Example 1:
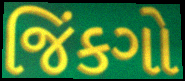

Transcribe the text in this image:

જિંકગો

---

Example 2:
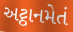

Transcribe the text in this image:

અટ્ઠાનમેતં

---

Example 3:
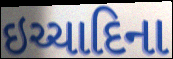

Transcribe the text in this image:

ઇચ્ચાદિના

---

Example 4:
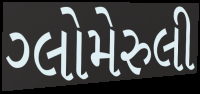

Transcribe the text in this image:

ગ્લોમેરુલી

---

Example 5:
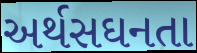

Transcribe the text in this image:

અર્થસઘનતા